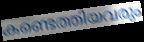
കണ്ടെത്തിയവരും